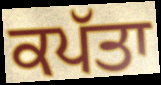
ਕਪੱਤਾ